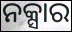
ନକ୍ସାର